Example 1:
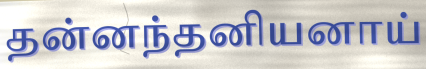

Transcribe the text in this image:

தன்னந்தனியனாய்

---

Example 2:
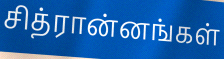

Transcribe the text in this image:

சித்ரான்னங்கள்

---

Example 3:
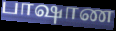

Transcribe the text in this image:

பாஷாண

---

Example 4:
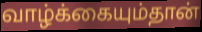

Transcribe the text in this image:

வாழ்க்கையும்தான்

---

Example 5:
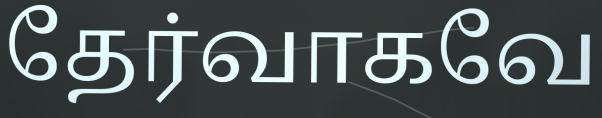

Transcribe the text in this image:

தேர்வாகவே